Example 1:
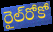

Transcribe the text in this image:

రైల్‌రోకో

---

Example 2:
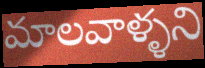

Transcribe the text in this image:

మాలవాళ్ళని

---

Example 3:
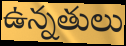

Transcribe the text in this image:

ఉన్నతులు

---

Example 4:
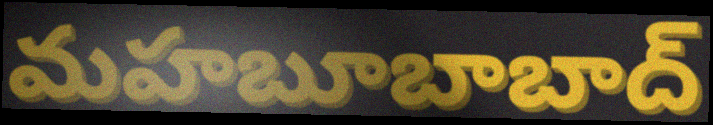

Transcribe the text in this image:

మహబూబాబాద్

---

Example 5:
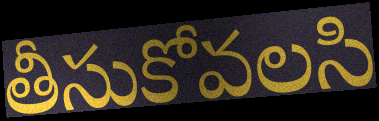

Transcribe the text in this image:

తీసుకోవలసి